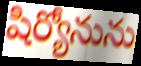
షిర్యోనును